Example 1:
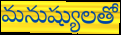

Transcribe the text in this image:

మనుష్యులతో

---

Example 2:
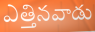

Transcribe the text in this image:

ఎత్తినవాడు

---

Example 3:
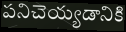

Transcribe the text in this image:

పనిచెయ్యడానికి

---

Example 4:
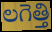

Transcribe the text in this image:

లగెత్తి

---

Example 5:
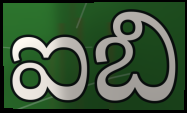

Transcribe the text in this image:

ఐబి